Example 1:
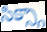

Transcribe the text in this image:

సిక్స్గా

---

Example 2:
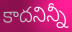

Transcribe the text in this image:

కాదనిన్నీ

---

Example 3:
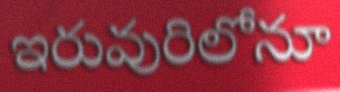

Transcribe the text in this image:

ఇరువురిలోనూ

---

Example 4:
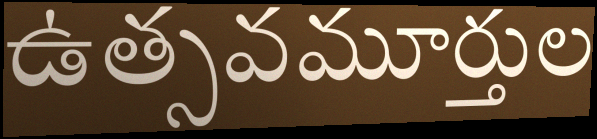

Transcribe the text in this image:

ఉత్సవమూర్తుల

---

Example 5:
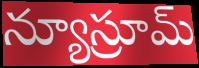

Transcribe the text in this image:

న్యూస్రూమ్